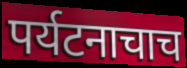
पर्यटनाचाच